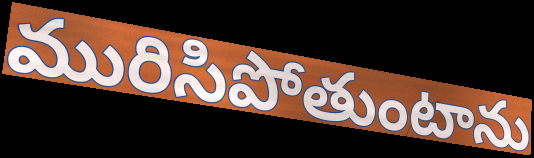
మురిసిపోతుంటాను